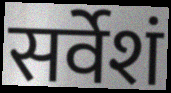
सर्वेशं